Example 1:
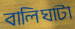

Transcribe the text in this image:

বালিঘাটা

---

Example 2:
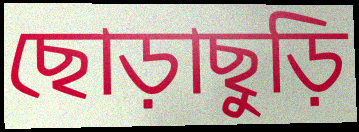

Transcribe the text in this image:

ছোড়াছুড়ি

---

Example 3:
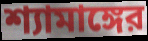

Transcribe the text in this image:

শ্যামাঙ্গের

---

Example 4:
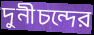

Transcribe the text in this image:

দুনীচন্দের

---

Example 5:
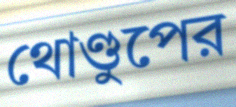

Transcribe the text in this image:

থোণ্ডুপের